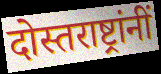
दोस्तराष्ट्रांनीं